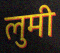
लुमी